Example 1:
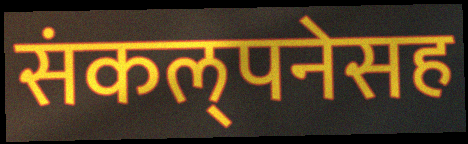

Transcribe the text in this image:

संकल्पनेसह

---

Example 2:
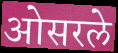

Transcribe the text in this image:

ओसरले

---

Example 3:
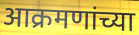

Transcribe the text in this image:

आक्रमणांच्या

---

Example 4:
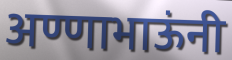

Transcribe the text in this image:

अण्णाभाऊंनी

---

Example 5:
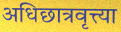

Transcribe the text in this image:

अधिछात्रवृत्त्या